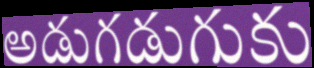
అడుగడుగుకు